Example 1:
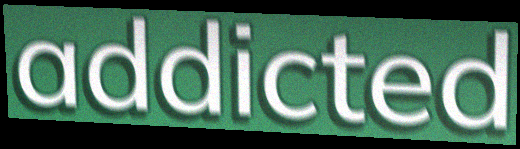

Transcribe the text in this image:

addicted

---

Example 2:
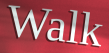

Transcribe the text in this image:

Walk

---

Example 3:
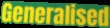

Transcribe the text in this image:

Generalised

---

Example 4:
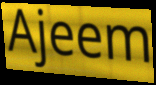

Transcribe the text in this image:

Ajeem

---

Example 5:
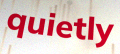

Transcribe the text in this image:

quietly